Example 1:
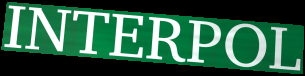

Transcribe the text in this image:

INTERPOL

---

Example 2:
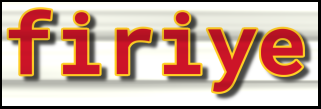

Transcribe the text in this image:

firiye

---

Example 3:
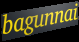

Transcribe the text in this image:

bagunnai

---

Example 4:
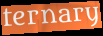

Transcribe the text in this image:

ternary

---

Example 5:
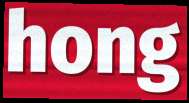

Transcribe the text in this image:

hong